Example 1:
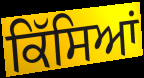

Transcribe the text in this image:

ਕਿੱਸਿਆਂ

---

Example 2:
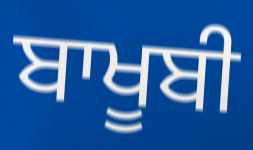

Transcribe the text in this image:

ਬਾਖੂਬੀ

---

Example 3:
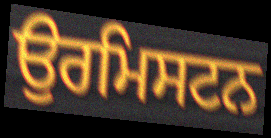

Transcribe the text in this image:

ਉਰਮਿਸਟਨ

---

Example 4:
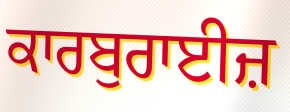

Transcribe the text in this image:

ਕਾਰਬੁਰਾਈਜ਼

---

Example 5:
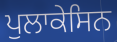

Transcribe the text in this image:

ਪੁਲਾਕੇਸਿਨ